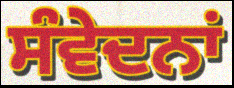
ਸੰਵੇਦਨਾਂ